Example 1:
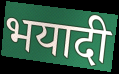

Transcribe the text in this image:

भयादी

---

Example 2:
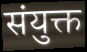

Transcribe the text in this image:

संयुक्त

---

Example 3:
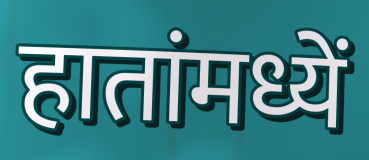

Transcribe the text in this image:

हातांमध्यें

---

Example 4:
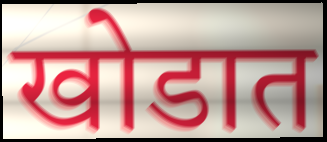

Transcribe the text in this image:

खोडात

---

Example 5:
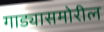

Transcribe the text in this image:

गाड्यासमोरील